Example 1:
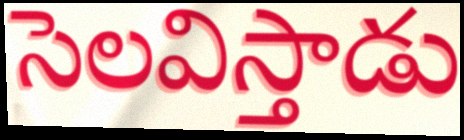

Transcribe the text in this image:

సెలవిస్తాడు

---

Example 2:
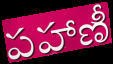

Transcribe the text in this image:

పహాణీ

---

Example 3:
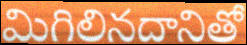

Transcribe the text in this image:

మిగిలినదానితో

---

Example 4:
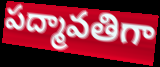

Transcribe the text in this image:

పద్మావతిగా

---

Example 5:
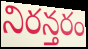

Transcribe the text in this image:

నిరన్తరం